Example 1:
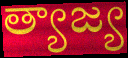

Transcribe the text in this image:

త్యాజ్య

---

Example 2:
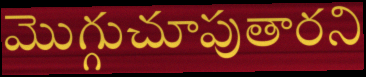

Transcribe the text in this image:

మొగ్గుచూపుతారని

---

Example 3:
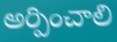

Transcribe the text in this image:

అర్పించాలి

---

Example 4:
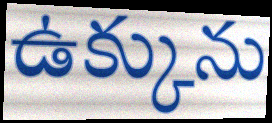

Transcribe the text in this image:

ఉక్కును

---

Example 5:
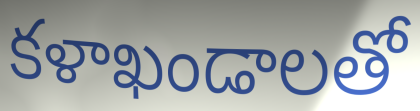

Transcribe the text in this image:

కళాఖండాలతో